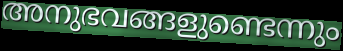
അനുഭവങ്ങളുണ്ടെന്നും